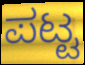
ಪಟ್ಟ